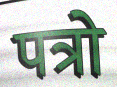
पत्रो